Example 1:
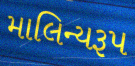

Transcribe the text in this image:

માલિન્યરૂપ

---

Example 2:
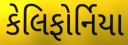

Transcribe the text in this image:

કેલિફોર્નિયા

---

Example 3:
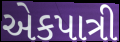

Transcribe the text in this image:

એકપાત્રી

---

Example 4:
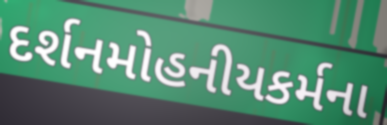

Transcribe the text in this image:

દર્શનમોહનીયકર્મના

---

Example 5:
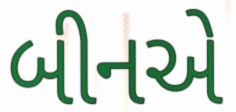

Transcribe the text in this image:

બીનએ